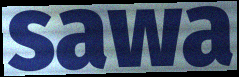
sawa